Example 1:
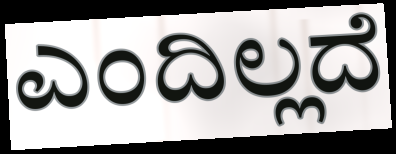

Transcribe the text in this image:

ಎಂದಿಲ್ಲದೆ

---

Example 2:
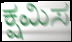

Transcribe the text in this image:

ಕ್ಷಮಿಸ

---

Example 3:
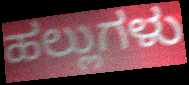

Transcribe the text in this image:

ಹಲ್ಲುಗಳು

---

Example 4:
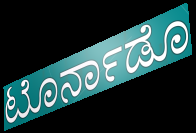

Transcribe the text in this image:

ಟೊರ್ನಾಡೊ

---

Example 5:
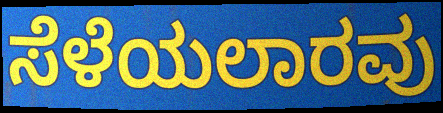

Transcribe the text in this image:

ಸೆಳೆಯಲಾರವು